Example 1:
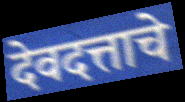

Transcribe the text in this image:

देवदत्ताचे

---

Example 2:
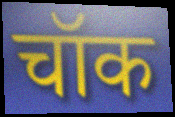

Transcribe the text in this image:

चॉक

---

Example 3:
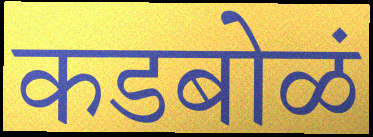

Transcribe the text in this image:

कडबोळं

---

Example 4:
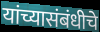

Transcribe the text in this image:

यांच्यासंबंधीचे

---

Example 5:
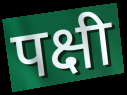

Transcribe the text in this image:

पक्षी